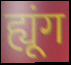
ह्यूंग